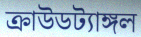
ক্রাউডট্যাঙ্গল